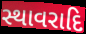
સ્થાવરાદિ